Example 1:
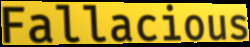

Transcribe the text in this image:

Fallacious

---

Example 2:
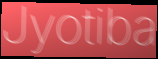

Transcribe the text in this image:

Jyotiba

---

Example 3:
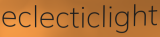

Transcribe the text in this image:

eclecticlight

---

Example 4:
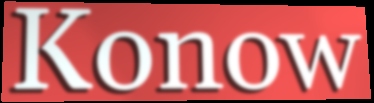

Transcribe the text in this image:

Konow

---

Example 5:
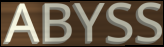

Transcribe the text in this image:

ABYSS